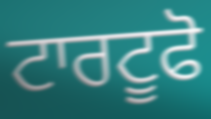
ਟਾਰਟੂਫੋ